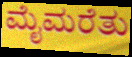
ಮೈಮರೆತು